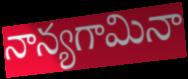
నాన్యగామినా